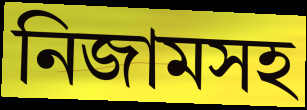
নিজামসহ